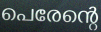
പെരേന്റെ